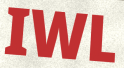
IWL